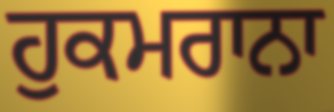
ਹੁਕਮਰਾਨਾ